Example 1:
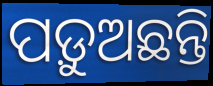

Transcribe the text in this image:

ପଡ଼ୁଅଛନ୍ତି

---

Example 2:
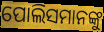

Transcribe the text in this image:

ପୋଲିସମାନଙ୍କୁ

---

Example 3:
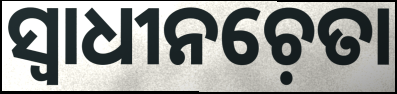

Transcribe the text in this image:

ସ୍ୱାଧୀନଚ଼େତା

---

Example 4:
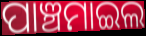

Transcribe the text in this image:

ପାଞ୍ଚମାଇଲ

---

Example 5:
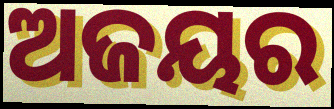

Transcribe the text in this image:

ଅଜୟର